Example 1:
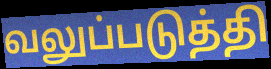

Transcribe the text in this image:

வலுப்படுத்தி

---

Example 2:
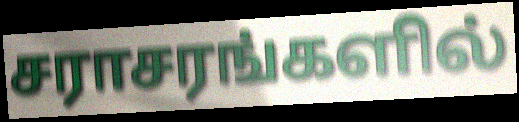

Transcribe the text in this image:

சராசரங்களில்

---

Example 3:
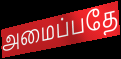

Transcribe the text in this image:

அமைப்பதே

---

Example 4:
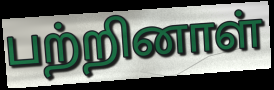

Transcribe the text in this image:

பற்றினாள்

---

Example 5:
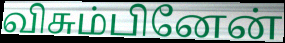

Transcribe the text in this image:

விசும்பினேன்